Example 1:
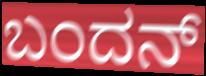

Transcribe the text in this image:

ಬಂದನ್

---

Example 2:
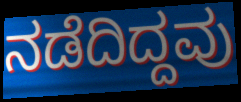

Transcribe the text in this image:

ನಡೆದಿದ್ದವು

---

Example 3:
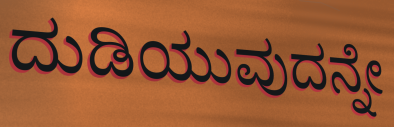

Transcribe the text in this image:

ದುಡಿಯುವುದನ್ನೇ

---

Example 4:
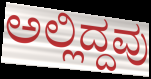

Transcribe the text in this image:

ಅಲ್ಲಿದ್ದವು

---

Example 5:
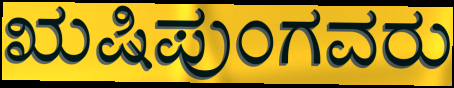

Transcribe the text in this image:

ಋಷಿಪುಂಗವರು